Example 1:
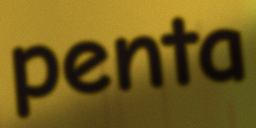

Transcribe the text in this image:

penta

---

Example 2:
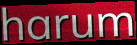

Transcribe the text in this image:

harum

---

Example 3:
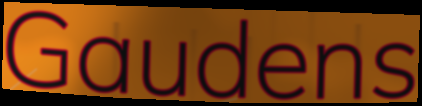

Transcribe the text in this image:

Gaudens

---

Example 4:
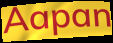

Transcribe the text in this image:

Aapan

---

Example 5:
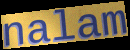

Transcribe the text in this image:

nalam